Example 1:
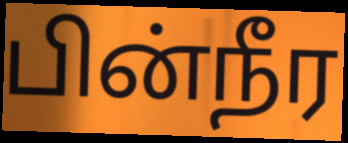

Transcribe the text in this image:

பின்நீர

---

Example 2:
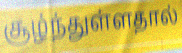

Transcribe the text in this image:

சூழ்ந்துள்ளதால்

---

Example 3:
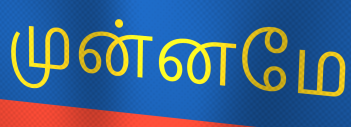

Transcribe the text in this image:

முன்னமே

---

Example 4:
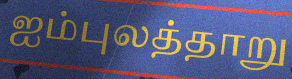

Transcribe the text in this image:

ஐம்புலத்தாறு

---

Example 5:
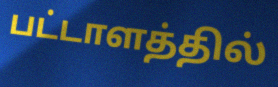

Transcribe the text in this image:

பட்டாளத்தில்